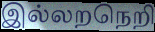
இல்லறநெறி